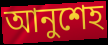
আনুশেহ